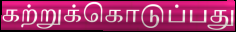
கற்றுக்கொடுப்பது